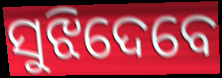
ସୁଝିଦେବେ